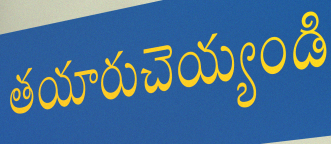
తయారుచెయ్యండి